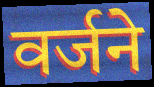
वर्जने